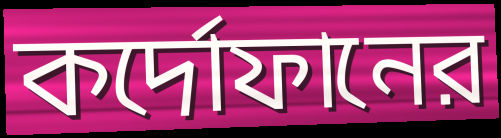
কর্দোফানের